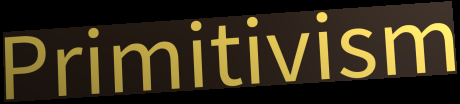
Primitivism